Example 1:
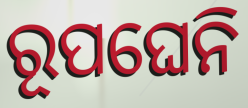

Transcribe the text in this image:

ରୂପଘେନି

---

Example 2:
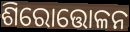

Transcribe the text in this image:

ଶିରୋତ୍ତୋଳନ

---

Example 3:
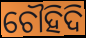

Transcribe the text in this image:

ଚୌହିଦି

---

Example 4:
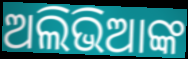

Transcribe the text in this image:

ଅଲିଭିଆଙ୍କ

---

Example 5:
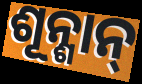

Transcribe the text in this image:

ଶୂନ୍ଶାନ୍